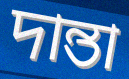
দান্তা